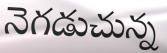
నెగడుచున్న